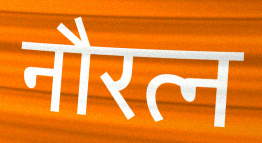
नौरत्न